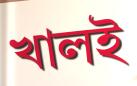
খালই